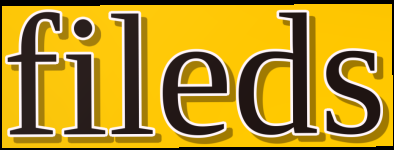
fileds